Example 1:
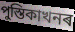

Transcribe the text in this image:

পুস্তিকাখনৰ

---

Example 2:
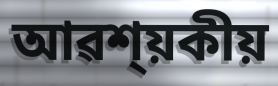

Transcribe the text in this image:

আৱশ্য়কীয়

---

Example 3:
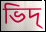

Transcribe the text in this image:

ভিদ্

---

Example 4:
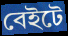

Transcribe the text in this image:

বেইটে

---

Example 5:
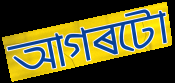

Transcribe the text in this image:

আগৰটো